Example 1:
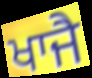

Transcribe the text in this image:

ਖਾਜੈ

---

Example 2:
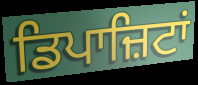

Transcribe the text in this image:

ਡਿਪਾਜ਼ਿਟਾਂ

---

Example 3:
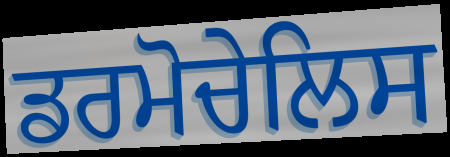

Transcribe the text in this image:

ਡਰਮੋਚੇਲਿਸ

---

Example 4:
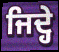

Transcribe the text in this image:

ਜਿਦ੍ਹੇ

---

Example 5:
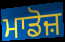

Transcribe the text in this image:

ਮਾਡੋਜ਼